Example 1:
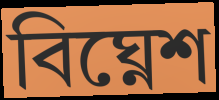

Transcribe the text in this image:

বিঘ্নেশ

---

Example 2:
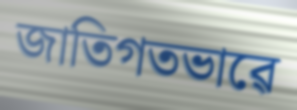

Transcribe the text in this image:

জাতিগতভাৱে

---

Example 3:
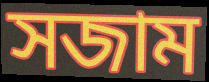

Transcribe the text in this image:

সজাম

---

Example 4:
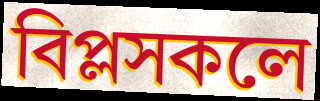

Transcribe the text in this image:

বিপ্লসকলে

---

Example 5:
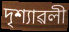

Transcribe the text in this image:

দৃশ্যাৱলী